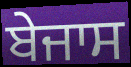
ਬੇਜਾਸ